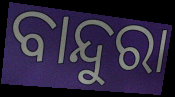
ବାନ୍ଦୁରା